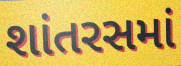
શાંતરસમાં